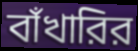
বাঁখারির